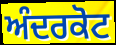
ਅੰਦਰਕੋਟ